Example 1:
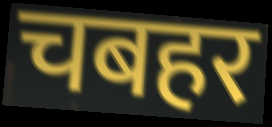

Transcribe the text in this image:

चबहर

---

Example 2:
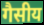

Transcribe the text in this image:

गैसीय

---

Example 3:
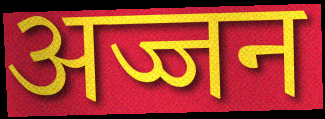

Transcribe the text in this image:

अज्जन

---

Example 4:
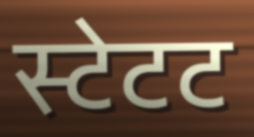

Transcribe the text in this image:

स्टेटट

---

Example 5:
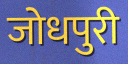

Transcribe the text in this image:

जोधपुरी